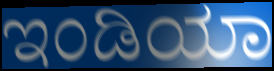
ಇಂಡಿಯಾ